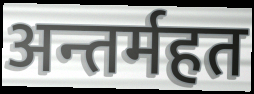
अन्तर्महत